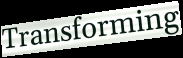
Transforming